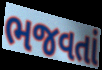
ભજવતાં